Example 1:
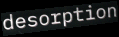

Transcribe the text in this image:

desorption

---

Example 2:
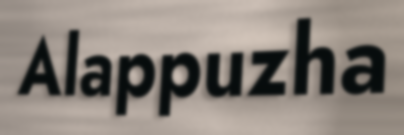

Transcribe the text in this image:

Alappuzha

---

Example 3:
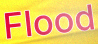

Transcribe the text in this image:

Flood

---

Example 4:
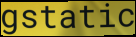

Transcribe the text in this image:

gstatic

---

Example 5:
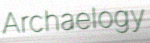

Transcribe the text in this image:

Archaelogy